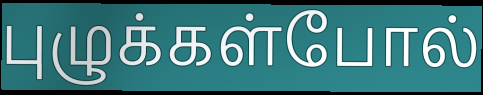
புழுக்கள்போல்